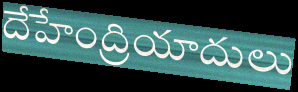
దేహేంద్రియాదులు